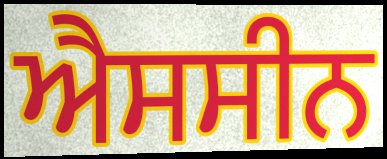
ਐਸਸੀਨ